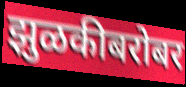
झुळकीबरोबर